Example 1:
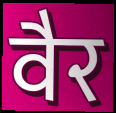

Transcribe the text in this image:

वैर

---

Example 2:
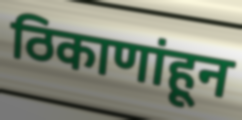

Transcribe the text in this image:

ठिकाणांहून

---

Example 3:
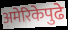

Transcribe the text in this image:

अमेरिकेपुढे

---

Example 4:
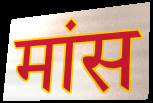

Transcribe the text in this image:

मांस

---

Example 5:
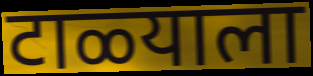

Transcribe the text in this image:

टाळ्याला